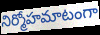
నిర్మోహమాటంగా